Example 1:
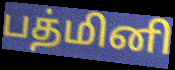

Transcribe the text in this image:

பத்மினி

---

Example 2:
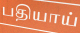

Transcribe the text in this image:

பதியாய்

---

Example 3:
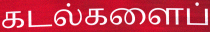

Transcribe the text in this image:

கடல்களைப்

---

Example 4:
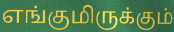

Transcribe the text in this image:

எங்குமிருக்கும்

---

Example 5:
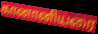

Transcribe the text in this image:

கானானியரை